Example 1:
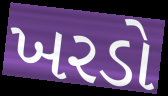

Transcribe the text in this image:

ખરડો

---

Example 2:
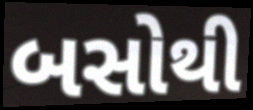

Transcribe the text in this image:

બસોથી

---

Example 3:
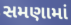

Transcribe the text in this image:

સમણામાં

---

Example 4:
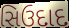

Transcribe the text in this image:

સિઉદાદ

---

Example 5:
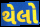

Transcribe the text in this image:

થેલો